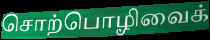
சொற்பொழிவைக்